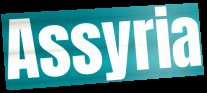
Assyria